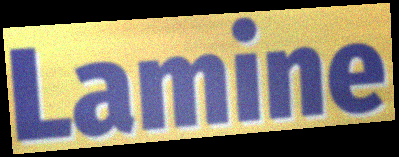
Lamine